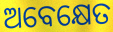
ଅବେକ୍ଷେତ